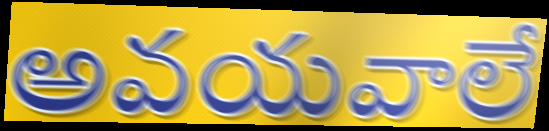
అవయవాలే